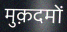
मुक़दमों